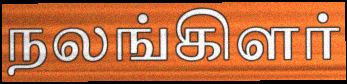
நலங்கிளர்